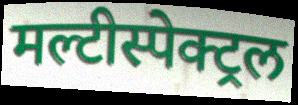
मल्टीस्पेक्ट्रल